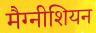
मैग्नीशियन